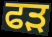
ਫੜ